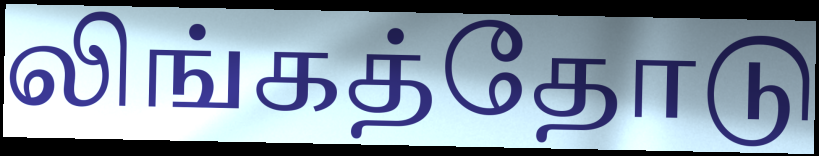
லிங்கத்தோடு